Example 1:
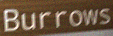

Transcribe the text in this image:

Burrows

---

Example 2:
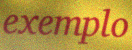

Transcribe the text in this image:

exemplo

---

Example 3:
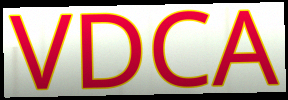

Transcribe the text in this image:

VDCA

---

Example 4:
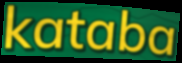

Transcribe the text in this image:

kataba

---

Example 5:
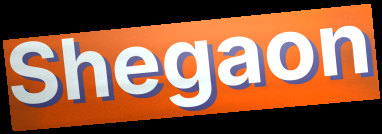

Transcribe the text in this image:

Shegaon